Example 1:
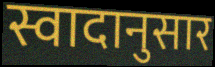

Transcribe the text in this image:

स्वादानुसार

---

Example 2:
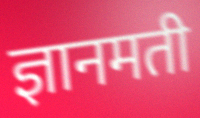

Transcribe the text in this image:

ज्ञानमती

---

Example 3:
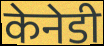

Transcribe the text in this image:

केनेडी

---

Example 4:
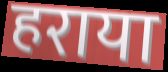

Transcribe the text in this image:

हराया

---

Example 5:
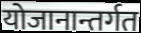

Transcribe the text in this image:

योजानान्तर्गत